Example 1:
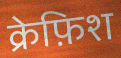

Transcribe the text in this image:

क्रेफ़िश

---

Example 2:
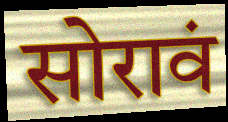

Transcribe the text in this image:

सोरावं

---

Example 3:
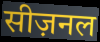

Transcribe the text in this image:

सीज़नल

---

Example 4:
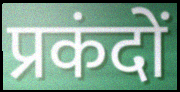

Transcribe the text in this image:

प्रकंदों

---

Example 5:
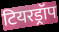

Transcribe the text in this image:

टियरड्रॉप